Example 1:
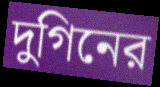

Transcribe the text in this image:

দুগিনের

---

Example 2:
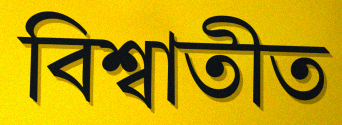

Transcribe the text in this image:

বিশ্বাতীত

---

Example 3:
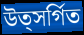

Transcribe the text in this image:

উত্সর্গিত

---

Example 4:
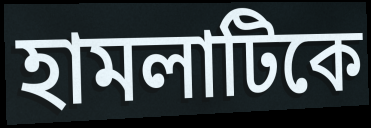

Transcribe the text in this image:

হামলাটিকে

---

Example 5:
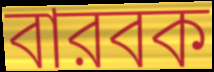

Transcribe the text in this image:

বারবক